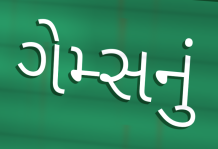
ગેમ્સનું